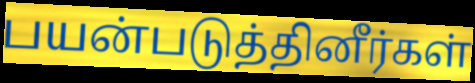
பயன்படுத்தினீர்கள்